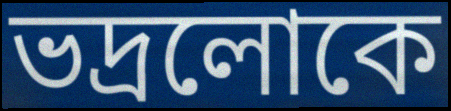
ভদ্ৰলোকে